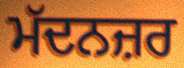
ਮੱਦਨਜ਼ਰ